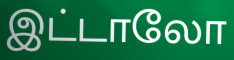
இட்டாலோ